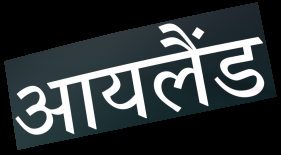
आयलैंड